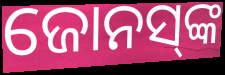
ଜୋନସ୍‌ଙ୍କ